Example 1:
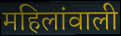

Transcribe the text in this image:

महिलांवाली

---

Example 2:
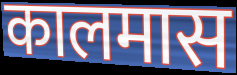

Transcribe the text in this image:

कालमास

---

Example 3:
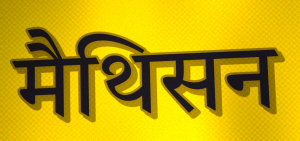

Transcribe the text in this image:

मैथिसन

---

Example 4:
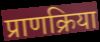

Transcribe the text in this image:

प्राणक्रिया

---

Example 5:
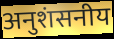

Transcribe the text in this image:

अनुशंसनीय